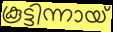
കൂട്ടിന്നായ്